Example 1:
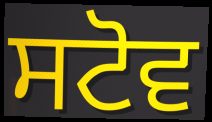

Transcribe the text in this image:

ਸਟੋਵ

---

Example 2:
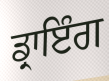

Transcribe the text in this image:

ਡ੍ਰਾਇੰਗ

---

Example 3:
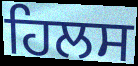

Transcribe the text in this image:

ਹਿਲਸ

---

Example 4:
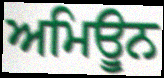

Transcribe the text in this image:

ਅਮਿਊਨ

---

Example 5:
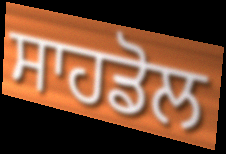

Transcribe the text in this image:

ਸਾਹਡੋਲ